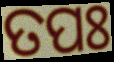
ତପଃ